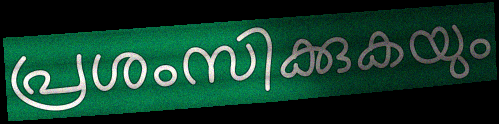
പ്രശംസിക്കുകയും